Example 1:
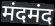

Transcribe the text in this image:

मंदमंद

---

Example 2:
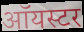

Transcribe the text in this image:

ऑयस्टर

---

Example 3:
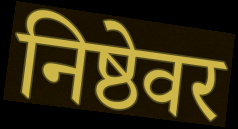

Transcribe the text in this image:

निष्ठेवर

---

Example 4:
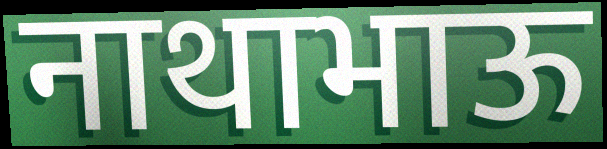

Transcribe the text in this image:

नाथाभाऊ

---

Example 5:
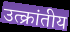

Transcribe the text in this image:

उत्क्रांतीय